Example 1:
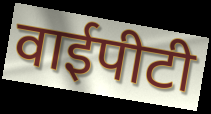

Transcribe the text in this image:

वाईपीटी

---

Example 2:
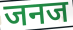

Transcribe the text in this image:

जनज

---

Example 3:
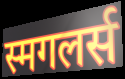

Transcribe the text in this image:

स्‍मगलर्स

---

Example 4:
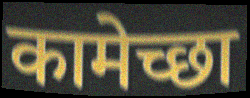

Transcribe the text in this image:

कामेच्छा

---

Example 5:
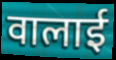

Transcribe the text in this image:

वालाई